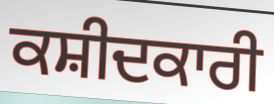
ਕਸ਼ੀਦਕਾਰੀ